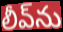
లీవ్‌ను